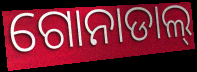
ଗୋନାଡାଲ୍